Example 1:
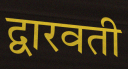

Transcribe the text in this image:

द्वारवती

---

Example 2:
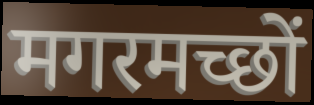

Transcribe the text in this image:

मगरमच्छों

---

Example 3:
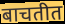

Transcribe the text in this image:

बाचतीत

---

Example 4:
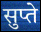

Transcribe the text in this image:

सुप्ते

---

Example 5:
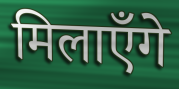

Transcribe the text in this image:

मिलाएँगे